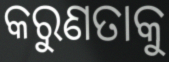
କରୁଣତାକୁ